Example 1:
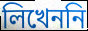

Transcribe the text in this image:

লিখেননি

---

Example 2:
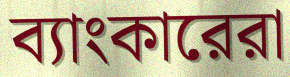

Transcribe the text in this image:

ব্যাংকারেরা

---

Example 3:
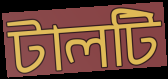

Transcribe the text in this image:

টালটি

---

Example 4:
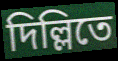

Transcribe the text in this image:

দিল্লিতে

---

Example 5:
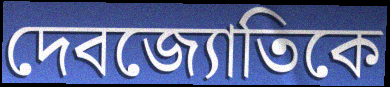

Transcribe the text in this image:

দেবজ্যোতিকে